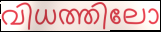
വിധത്തിലോ